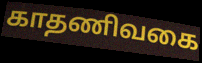
காதணிவகை